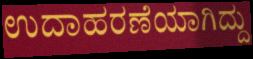
ಉದಾಹರಣೆಯಾಗಿದ್ದು